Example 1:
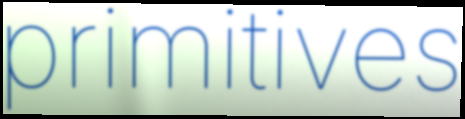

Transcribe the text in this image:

primitives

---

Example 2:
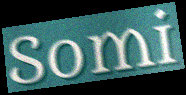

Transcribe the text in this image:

Somi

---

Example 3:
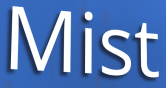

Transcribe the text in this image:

Mist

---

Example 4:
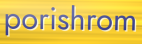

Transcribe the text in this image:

porishrom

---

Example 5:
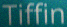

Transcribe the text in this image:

Tiffin